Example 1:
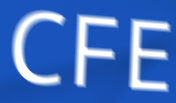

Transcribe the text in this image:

CFE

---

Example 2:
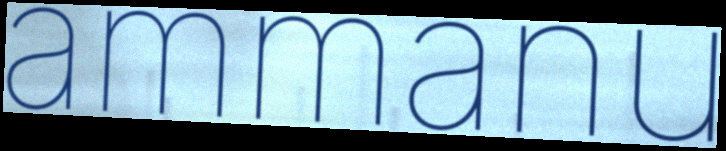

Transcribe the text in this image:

ammanu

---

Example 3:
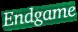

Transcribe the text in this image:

Endgame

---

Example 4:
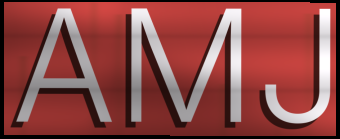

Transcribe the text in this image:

AMJ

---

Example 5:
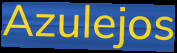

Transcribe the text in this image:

Azulejos